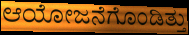
ಆಯೋಜನೆಗೊಂಡಿತ್ತು